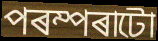
পৰম্পৰাটো